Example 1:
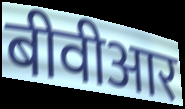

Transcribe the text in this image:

बीवीआर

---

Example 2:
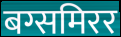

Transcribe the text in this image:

बग्समिरर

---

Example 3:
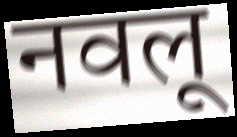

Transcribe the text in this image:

नवलू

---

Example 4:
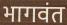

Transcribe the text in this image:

भागवंत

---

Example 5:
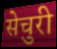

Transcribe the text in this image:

सेचुरी